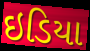
ઇડિયા